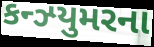
કન્ઝ્યુમરના